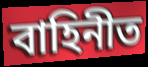
বাহিনীত